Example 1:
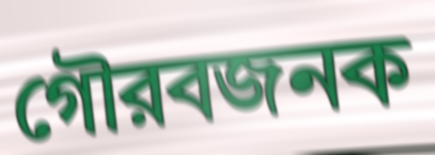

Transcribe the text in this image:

গৌরবজনক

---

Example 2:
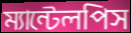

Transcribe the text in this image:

ম্যান্টেলপিস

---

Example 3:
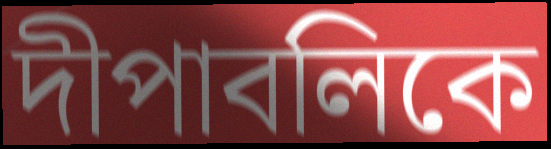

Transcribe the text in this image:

দীপাবলিকে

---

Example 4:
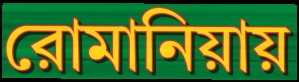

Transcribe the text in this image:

রোমানিয়ায়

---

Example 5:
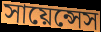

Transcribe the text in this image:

সায়েন্সেস